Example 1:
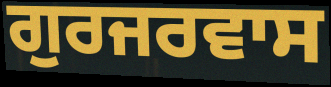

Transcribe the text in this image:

ਗੁਰਜਰਵਾਸ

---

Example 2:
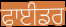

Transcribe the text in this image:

ਫਾਈਡਰ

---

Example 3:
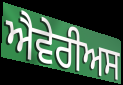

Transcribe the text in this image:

ਐਵੇਰੀਅਸ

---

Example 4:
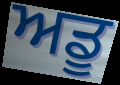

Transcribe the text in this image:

ਅਡੂ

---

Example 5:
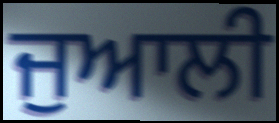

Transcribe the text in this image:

ਜੁਆਲੀ